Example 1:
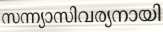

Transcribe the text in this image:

സന്ന്യാസിവര്യനായി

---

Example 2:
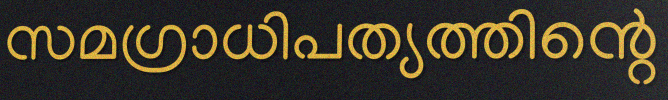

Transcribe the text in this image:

സമഗ്രാധിപത്യത്തിന്റെ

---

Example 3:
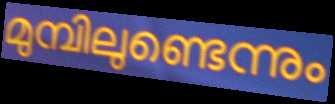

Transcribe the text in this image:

മുമ്പിലുണ്ടെന്നും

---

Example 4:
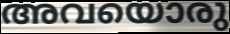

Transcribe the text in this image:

അവയൊരു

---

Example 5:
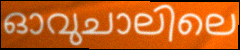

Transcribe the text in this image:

ഓവുചാലിലെ